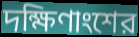
দক্ষিণাংশের